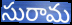
సురామ